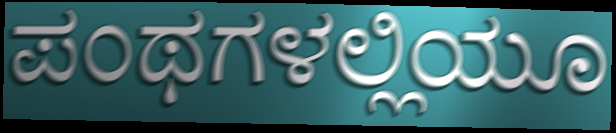
ಪಂಥಗಳಲ್ಲಿಯೂ